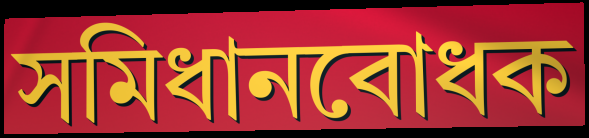
সমিধানবোধক